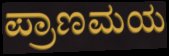
ಪ್ರಾಣಮಯ